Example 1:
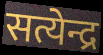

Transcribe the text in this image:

सत्येन्द्र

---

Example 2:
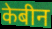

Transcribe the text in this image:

केबीन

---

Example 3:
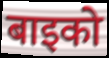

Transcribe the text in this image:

बाइको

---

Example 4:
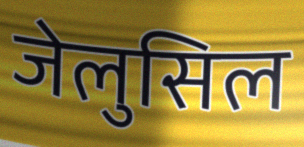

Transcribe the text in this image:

जेलुसिल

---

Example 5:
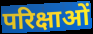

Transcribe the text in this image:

परिक्षाओं